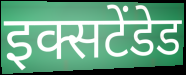
इक्सटेंडेड